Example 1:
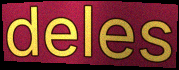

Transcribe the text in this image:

deles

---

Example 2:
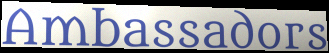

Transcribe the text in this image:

Ambassadors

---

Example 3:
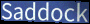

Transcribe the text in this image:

Saddock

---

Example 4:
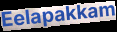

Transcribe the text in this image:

Eelapakkam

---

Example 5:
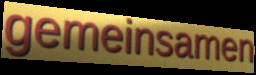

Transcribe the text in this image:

gemeinsamen